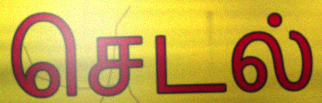
செடல்